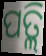
ପତ୍ଲି